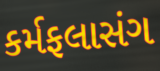
કર્મફલાસંગ